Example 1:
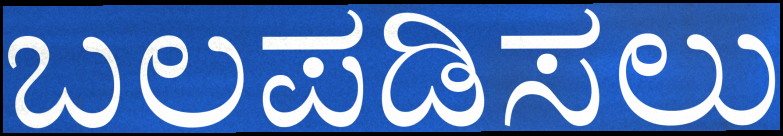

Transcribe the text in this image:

ಬಲಪಡಿಸಲು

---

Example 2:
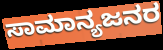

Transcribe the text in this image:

ಸಾಮಾನ್ಯಜನರ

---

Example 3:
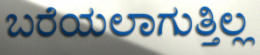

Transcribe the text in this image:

ಬರೆಯಲಾಗುತ್ತಿಲ್ಲ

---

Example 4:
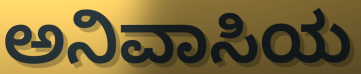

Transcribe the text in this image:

ಅನಿವಾಸಿಯ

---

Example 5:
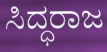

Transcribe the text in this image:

ಸಿದ್ಧರಾಜ